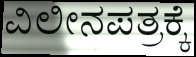
ವಿಲೀನಪತ್ರಕ್ಕೆ